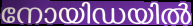
നോയിഡയിൽ